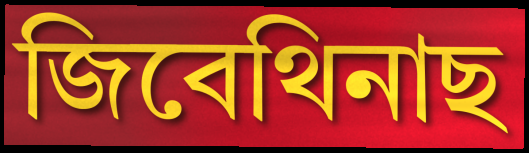
জিবেথিনাছ